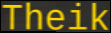
Theik